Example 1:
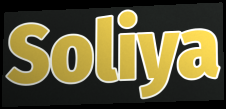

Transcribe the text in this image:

Soliya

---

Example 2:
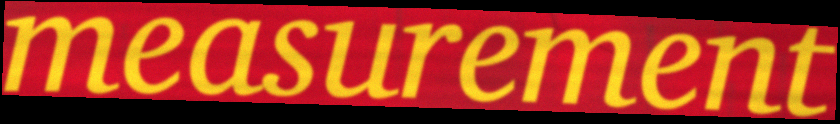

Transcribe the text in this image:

measurement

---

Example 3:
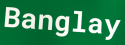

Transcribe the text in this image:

Banglay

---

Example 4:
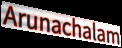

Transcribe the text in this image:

Arunachalam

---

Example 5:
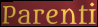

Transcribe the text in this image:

Parenti